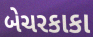
બેચરકાકા